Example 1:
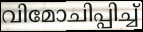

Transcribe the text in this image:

വിമോചിപ്പിച്ച്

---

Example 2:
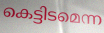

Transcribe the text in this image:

കെട്ടിടമെന്ന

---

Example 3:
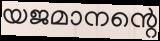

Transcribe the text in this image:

യജമാനന്റെ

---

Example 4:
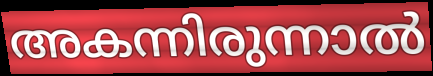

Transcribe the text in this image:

അകന്നിരുന്നാൽ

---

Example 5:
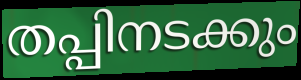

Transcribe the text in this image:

തപ്പിനടക്കും